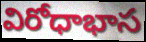
విరోధాభాస